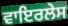
ਵਾਇਰਲੇਸ